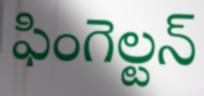
ఫింగెల్టన్